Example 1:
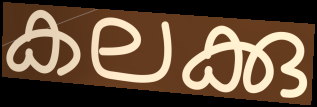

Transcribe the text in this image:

കലക്കു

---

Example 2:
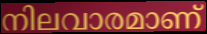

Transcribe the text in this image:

നിലവാരമാണ്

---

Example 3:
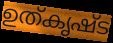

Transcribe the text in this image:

ഉത്കൃഷ്ട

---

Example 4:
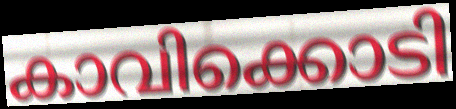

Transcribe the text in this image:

കാവിക്കൊടി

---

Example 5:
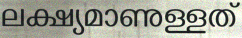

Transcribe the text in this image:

ലക്ഷ്യമാണുള്ളത്